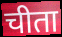
चीता